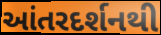
આંતરદર્શનથી